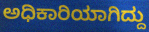
ಅಧಿಕಾರಿಯಾಗಿದ್ದು